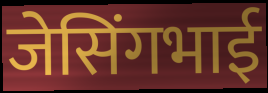
जेसिंगभाई